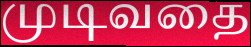
முடிவதை